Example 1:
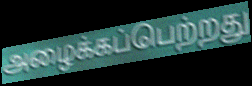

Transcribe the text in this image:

அழைக்கப்பெற்றது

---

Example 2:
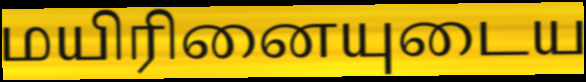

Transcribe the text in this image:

மயிரினையுடைய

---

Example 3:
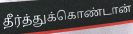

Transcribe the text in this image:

தீர்த்துக்கொண்டான்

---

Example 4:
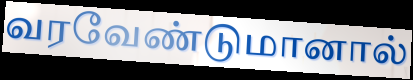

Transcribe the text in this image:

வரவேண்டுமானால்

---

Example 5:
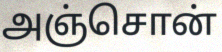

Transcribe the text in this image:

அஞ்சொன்